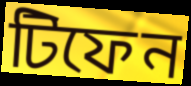
টিফেন